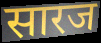
सारज